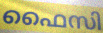
ഫൈസി